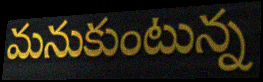
మనుకుంటున్న